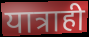
यात्राही